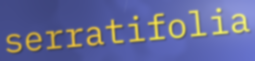
serratifolia